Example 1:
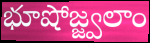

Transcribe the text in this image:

భూషోజ్జ్వలాం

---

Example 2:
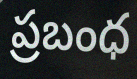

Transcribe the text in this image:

ప్రబంధ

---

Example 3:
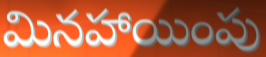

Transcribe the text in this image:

మినహాయింపు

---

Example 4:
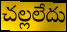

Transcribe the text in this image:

చల్లలేదు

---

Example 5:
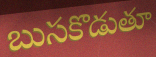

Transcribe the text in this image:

బుసకొడుతూ